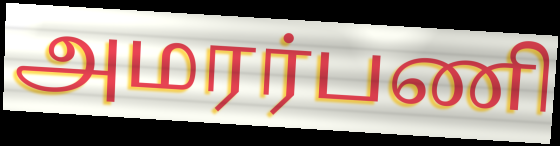
அமரர்பணி